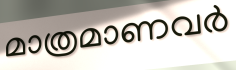
മാത്രമാണവർ